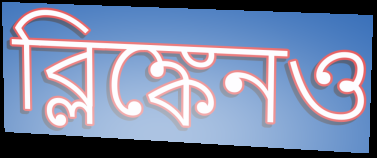
ব্লিঙ্কেনও